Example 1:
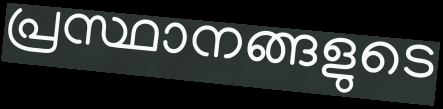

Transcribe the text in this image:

പ്രസ്ഥാനങ്ങളുടെ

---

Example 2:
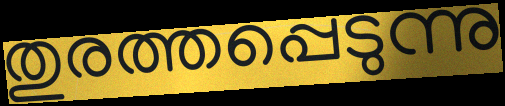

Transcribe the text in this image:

തുരത്തപ്പെടുന്നു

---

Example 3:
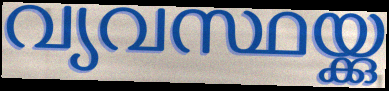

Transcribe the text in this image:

വ്യവസ്ഥയ്ക്കു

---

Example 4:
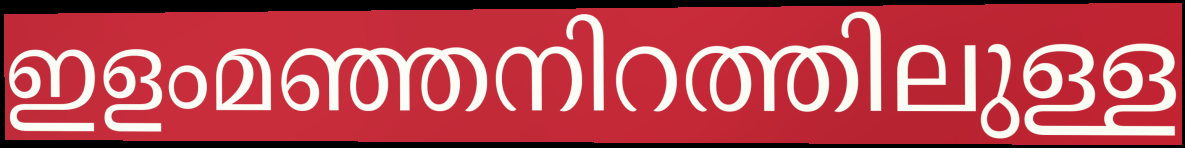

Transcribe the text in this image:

ഇളംമഞ്ഞനിറത്തിലുള്ള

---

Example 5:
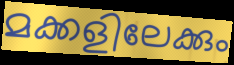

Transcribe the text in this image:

മക്കളിലേക്കും